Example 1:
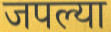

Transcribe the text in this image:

जपल्या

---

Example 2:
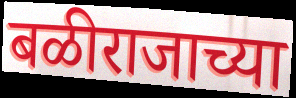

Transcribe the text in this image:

बळीराजाच्या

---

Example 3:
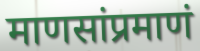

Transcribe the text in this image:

माणसांप्रमाणं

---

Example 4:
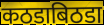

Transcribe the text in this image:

कठडाबिठडा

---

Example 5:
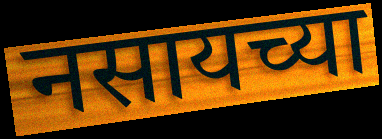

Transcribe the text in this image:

नसायच्या